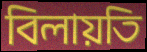
বিলায়তি